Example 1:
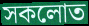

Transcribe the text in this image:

সকলোত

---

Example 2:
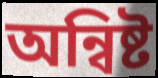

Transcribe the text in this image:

অন্বিষ্ট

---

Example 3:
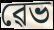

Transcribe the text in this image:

ৱেভ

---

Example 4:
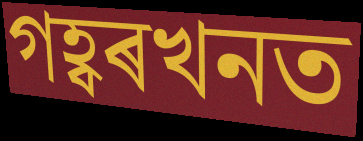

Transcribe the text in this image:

গহ্বৰখনত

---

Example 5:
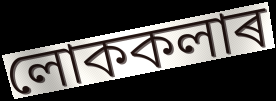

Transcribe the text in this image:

লোককলাৰ